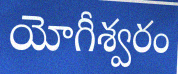
యోగీశ్వరం